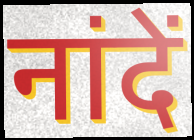
नांदें